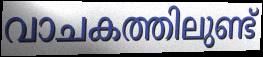
വാചകത്തിലുണ്ട്